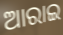
ଆରାଇ